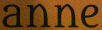
anne